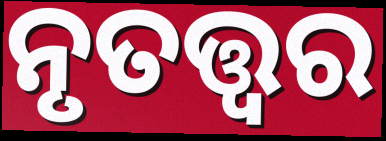
ନୃତତ୍ତ୍ୱର